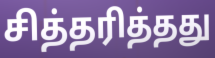
சித்தரித்தது